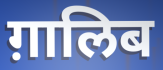
ग़ालिब